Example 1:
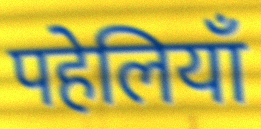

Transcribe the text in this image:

पहेलियाँ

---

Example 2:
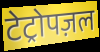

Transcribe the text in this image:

टेट्रोपज़ल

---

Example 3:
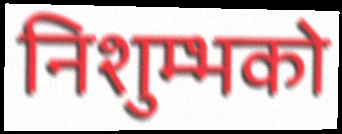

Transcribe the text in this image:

निशुम्भको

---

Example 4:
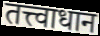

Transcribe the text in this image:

तत्त्वाधान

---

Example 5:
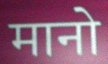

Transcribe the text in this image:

मानो